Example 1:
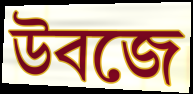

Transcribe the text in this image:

উবজে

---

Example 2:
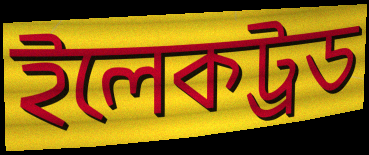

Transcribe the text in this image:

ইলেকট্রড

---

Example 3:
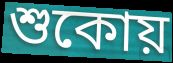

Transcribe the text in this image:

শুকোয়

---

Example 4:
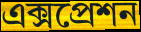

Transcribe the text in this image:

এক্সপ্রেশন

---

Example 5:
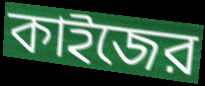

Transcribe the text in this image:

কাইজের